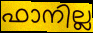
ഫാനില്ല